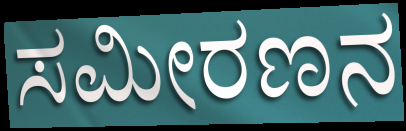
ಸಮೀರಣನ